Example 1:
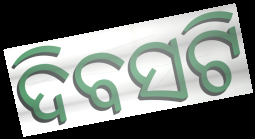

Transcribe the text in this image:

ଦିବସଟି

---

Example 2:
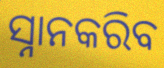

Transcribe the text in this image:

ସ୍ନାନକରିବ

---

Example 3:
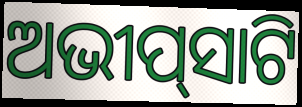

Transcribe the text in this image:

ଅଭୀପ୍‌ସାଟି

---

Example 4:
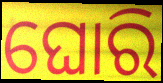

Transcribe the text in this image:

ଘୋରି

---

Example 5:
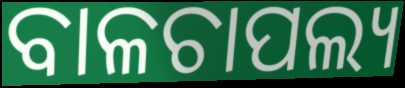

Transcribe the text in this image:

ବାଳଚାପଲ୍ୟ